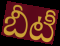
బీటీ